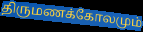
திருமணக்கோலமும்